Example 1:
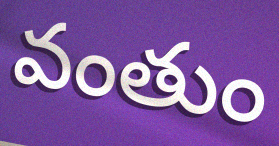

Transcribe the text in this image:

వంతుం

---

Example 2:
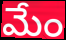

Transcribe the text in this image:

మేం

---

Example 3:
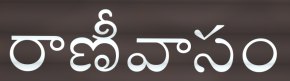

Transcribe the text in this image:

రాణీవాసం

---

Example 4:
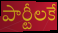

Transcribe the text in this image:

పార్టీలకే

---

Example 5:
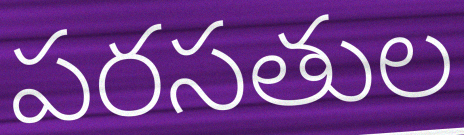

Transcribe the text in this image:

పరసతుల